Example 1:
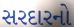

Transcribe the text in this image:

સરદારનો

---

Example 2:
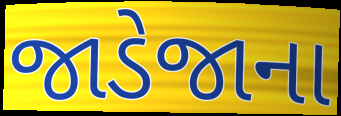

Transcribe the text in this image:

જાડેજાના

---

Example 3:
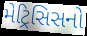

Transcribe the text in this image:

મેટ્રિસિસનો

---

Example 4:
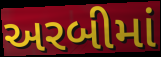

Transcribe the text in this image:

અરબીમાં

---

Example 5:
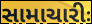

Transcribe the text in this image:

સામાચારીઃ